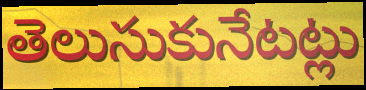
తెలుసుకునేటట్లు